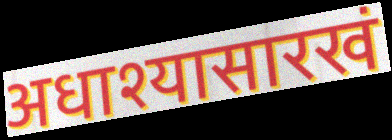
अधाश्यासारखं